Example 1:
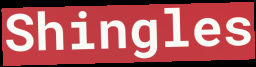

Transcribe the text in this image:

Shingles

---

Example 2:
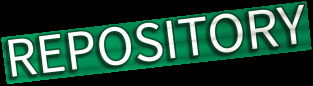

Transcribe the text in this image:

REPOSITORY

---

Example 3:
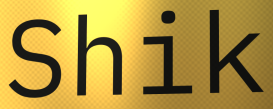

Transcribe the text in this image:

Shik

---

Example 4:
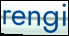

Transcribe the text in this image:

rengi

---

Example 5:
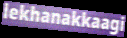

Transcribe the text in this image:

lekhanakkaagi